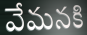
వేమనకి